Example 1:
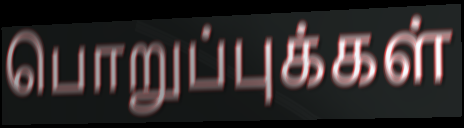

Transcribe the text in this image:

பொறுப்புக்கள்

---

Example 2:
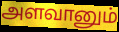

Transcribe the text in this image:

அளவானும்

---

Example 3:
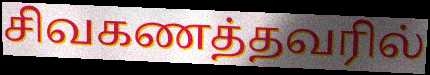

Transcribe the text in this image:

சிவகணத்தவரில்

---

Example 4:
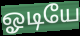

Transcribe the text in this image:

ஓடியே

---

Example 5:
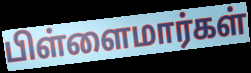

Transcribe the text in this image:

பிள்ளைமார்கள்